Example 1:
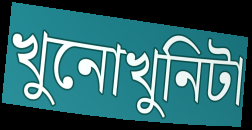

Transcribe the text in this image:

খুনোখুনিটা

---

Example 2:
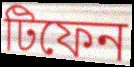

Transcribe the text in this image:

টিফেন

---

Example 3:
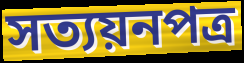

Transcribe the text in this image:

সত্যয়নপত্র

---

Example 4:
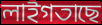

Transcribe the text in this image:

লাইগতাছে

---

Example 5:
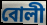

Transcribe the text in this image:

বোলী